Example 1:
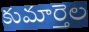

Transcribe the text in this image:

కుమార్తెల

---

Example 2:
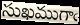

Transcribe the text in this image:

సుఖముగాఁ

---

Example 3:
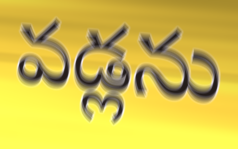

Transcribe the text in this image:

వడ్లను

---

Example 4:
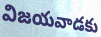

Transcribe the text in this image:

విజయవాడకు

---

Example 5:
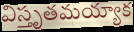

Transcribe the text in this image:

విస్తృతమయ్యాక